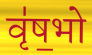
वृ॑ष॒भो